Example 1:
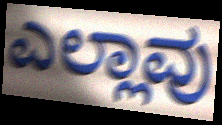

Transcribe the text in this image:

ಎಲ್ಲಾವು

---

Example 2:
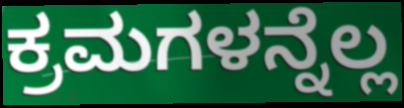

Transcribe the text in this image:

ಕ್ರಮಗಳನ್ನೆಲ್ಲ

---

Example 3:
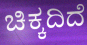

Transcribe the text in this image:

ಚಿಕ್ಕದಿದೆ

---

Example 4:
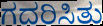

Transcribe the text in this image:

ಗದರಿಸಿತು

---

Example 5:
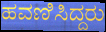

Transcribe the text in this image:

ಹವಣಿಸಿದ್ದರು